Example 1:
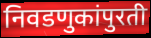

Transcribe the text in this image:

निवडणुकांपुरती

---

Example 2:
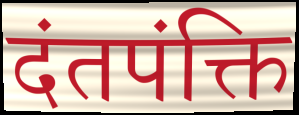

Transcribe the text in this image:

दंतपंक्ति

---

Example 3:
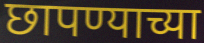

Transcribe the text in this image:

छापण्याच्या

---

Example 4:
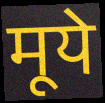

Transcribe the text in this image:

मूये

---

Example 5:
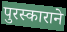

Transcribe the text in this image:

पुरस्काराने